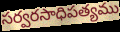
సర్వరసాధిపత్యము